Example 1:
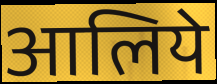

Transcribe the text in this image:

आलिये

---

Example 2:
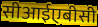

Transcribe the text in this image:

सीआईएबीसी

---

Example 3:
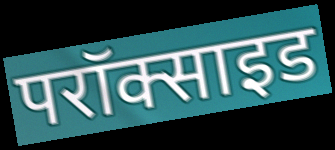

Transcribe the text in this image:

परॉक्साइड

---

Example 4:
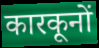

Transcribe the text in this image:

कारकूनों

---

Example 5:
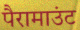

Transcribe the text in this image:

पैरामाउंट